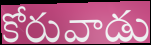
కోరువాడు